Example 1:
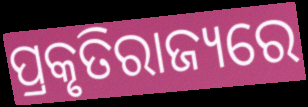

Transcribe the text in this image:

ପ୍ରକୃତିରାଜ୍ୟରେ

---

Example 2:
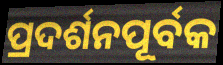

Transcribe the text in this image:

ପ୍ରଦର୍ଶନପୂର୍ବକ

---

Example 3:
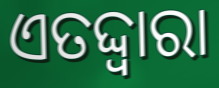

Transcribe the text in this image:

ଏତଦ୍ଦ୍ୱାରା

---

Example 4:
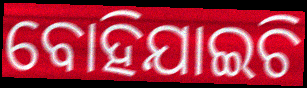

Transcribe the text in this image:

ବୋହିଯାଇଚି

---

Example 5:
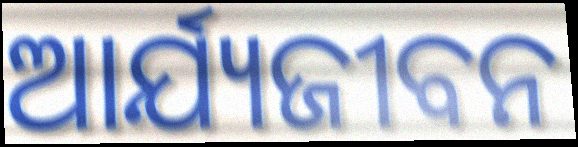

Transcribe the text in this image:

ଆର୍ଯ୍ୟଜୀବନ